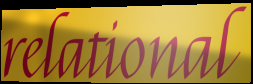
relational